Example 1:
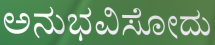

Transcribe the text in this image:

ಅನುಭವಿಸೋದು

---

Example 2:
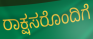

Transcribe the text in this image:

ರಾಕ್ಷಸರೊಂದಿಗೆ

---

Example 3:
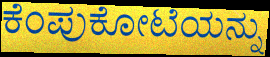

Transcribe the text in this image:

ಕೆಂಪುಕೋಟೆಯನ್ನು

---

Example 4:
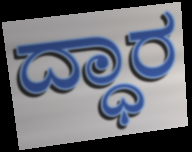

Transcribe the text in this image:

ದ್ಧಾರ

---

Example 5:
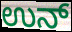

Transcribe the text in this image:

ಉನ್